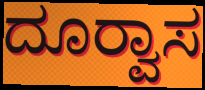
ದೂರ‍್ವಾಸ